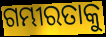
ଗମ୍ଭୀରତାକୁ